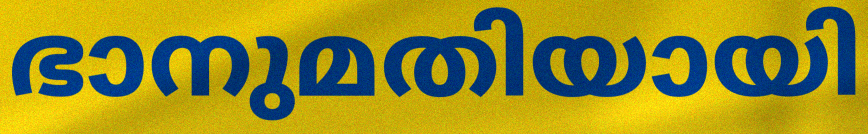
ഭാനുമതിയായി